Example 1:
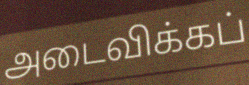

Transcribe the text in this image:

அடைவிக்கப்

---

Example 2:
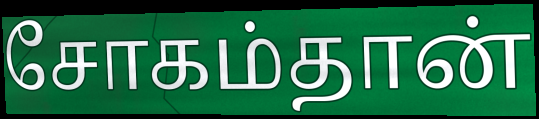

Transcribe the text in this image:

சோகம்தான்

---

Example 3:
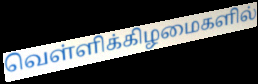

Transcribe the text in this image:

வெள்ளிக்கிழமைகளில்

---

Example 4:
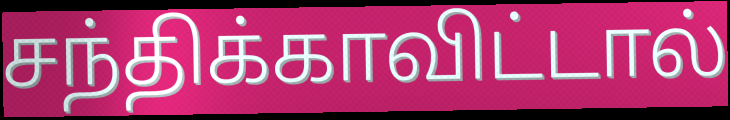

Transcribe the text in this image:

சந்திக்காவிட்டால்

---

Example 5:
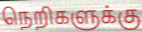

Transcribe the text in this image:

நெறிகளுக்கு